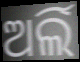
ଅର୍ଲି